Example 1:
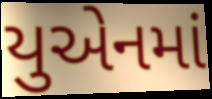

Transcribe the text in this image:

યુએનમાં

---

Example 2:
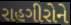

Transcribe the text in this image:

રાહગીરોને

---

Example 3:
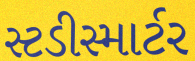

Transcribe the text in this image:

સ્ટડીસ્માર્ટર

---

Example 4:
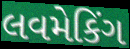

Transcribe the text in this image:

લવમેકિંગ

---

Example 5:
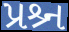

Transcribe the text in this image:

પ્રશ્ર્ન